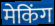
मेकिंग